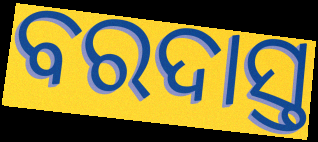
ବରଦାସ୍ତ